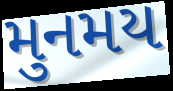
મુનમય